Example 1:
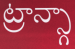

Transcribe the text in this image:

ట్రాన్స్గా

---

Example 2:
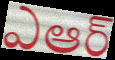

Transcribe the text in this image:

ఎఆర్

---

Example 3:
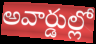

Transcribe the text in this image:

అవార్డుల్లో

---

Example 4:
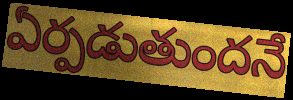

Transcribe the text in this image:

ఏర్పడుతుందనే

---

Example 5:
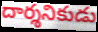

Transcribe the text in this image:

దార్శనికుడు